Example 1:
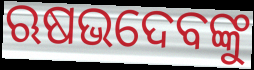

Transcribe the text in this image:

ଋଷଭଦେବଙ୍କୁ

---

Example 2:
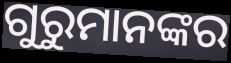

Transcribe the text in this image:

ଗୁରୁମାନଙ୍କର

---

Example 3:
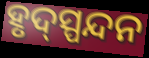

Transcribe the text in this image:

ହୃଦ୍‍ସ୍ପନ୍ଦନ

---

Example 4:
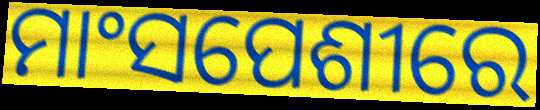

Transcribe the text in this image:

ମାଂସପେଶୀରେ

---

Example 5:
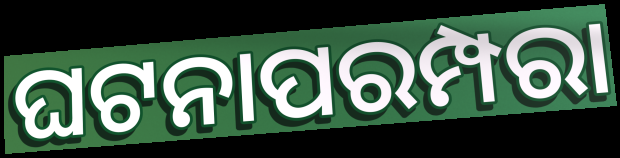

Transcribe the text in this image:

ଘଟନାପରମ୍ପରା